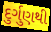
દુર્ગુણથી